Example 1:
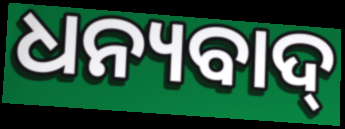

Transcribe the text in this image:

ଧନ୍ୟବାଦ୍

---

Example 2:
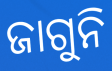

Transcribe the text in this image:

ଜାଗୁନି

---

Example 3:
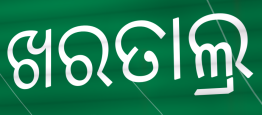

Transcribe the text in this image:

ଖରତାଲ୍ର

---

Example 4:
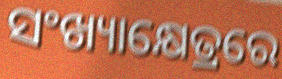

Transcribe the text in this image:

ସଂଖ୍ୟାକ୍ଷେତ୍ରରେ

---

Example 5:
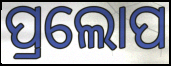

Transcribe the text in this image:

ପ୍ରଲୋପ